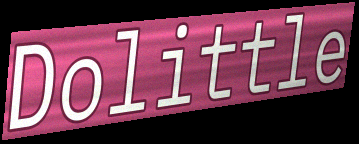
Dolittle